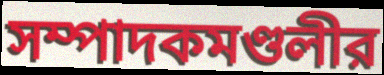
সম্পাদকমণ্ডলীর